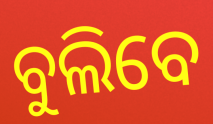
ବୁଲିବେ